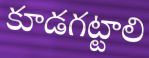
కూడగట్టాలి